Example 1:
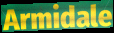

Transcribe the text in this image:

Armidale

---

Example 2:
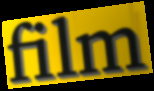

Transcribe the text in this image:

film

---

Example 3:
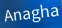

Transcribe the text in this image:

Anagha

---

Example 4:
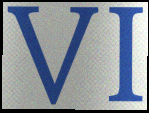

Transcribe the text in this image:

VI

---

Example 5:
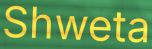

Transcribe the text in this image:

Shweta